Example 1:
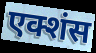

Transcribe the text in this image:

एक्शंस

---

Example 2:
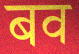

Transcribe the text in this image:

बव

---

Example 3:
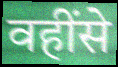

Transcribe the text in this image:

वहींसे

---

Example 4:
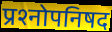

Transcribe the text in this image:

प्रश्नोपनिषद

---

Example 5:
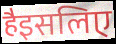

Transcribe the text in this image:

हैइसलिए